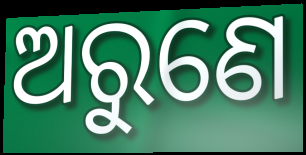
ଅରୁଣେ